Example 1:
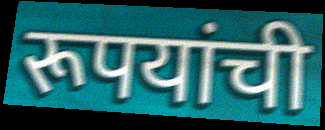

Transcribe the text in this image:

रूपयांची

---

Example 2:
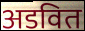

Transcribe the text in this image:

अडवित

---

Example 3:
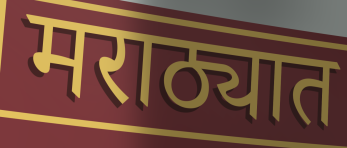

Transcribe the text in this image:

मराठ्यात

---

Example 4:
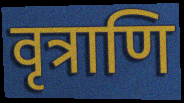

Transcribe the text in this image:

वृत्राणि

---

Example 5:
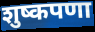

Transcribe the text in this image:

शुष्कपणा